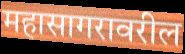
महासागरावरील